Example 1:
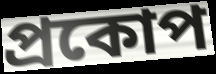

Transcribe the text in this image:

প্ৰকোপ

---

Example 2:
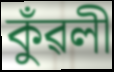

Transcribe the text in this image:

কুঁৱলী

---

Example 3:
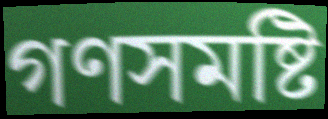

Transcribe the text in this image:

গণসমষ্টি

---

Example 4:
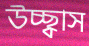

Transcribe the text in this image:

উচ্ছ্বাস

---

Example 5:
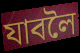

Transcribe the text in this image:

যাবলৈ